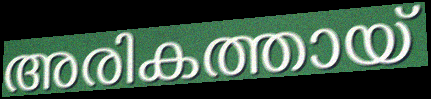
അരികത്തായ്